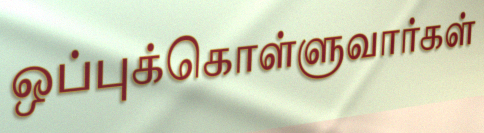
ஒப்புக்கொள்ளுவார்கள்